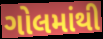
ગોલમાંથી